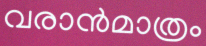
വരാൻമാത്രം